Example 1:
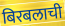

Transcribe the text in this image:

बिरबलाची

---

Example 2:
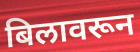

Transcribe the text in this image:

बिलावरून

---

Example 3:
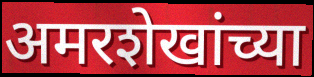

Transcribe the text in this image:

अमरशेखांच्या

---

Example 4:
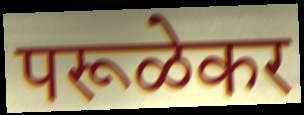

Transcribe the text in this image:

परूळेकर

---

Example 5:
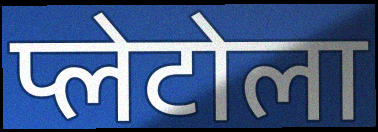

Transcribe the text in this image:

प्लेटोला